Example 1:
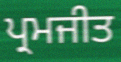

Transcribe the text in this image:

ਪ੍ਰਮਜੀਤ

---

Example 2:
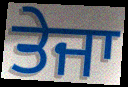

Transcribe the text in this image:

ਤੇਜਾ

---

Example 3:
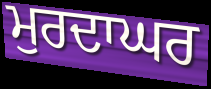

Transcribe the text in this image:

ਮੁਰਦਾਘਰ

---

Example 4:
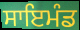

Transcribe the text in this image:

ਸਾਇਮੰਡ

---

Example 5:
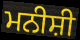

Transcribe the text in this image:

ਮਨੀਸ਼ੀ